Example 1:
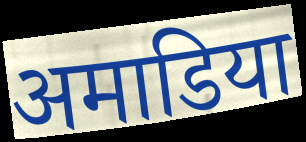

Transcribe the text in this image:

अमाडिया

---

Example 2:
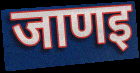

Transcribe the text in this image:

जाणइ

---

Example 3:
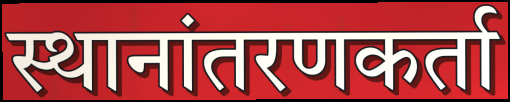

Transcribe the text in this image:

स्थानांतरणकर्ता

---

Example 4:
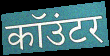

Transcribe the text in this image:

कॉउंटर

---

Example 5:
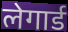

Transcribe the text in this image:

लेगार्ड